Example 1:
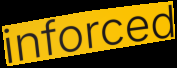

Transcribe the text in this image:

inforced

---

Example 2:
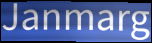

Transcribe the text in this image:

Janmarg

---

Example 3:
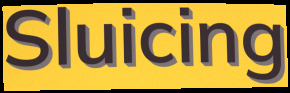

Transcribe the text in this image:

Sluicing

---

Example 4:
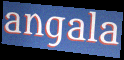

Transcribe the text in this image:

angala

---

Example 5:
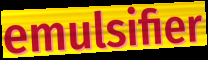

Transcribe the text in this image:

emulsifier